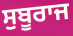
ਸੁਬੂਰਾਜ